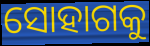
ସୋହାଗକୁ